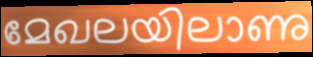
മേഖലയിലാണു